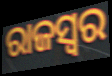
ରାଜସ୍ୱର